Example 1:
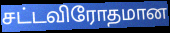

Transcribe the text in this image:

சட்டவிரோதமான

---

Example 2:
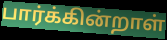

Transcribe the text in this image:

பார்க்கின்றாள்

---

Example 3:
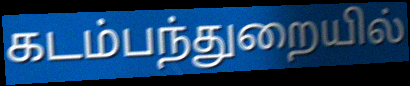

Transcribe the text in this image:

கடம்பந்துறையில்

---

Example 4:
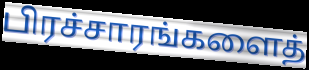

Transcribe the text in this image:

பிரச்சாரங்களைத்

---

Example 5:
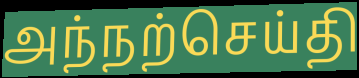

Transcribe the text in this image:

அந்நற்செய்தி